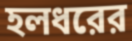
হলধরের